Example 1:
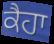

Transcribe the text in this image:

ਕੈਹਾ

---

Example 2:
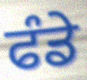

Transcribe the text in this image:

ਫੰਡੇ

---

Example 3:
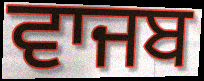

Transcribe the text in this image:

ਵਾਜਬ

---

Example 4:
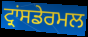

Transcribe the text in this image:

ਟ੍ਰਾਂਸਡੇਰਮਲ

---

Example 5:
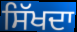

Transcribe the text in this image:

ਸਿੱਖਦਾ